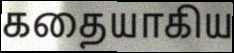
கதையாகிய